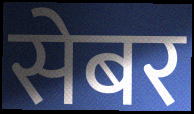
सेबर